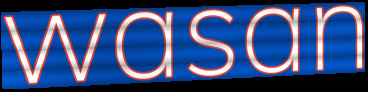
wasan